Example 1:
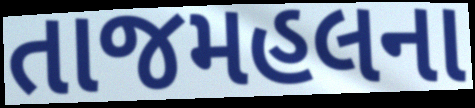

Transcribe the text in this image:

તાજમહલના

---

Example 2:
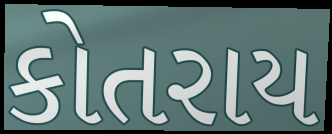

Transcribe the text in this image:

કોતરાય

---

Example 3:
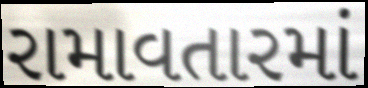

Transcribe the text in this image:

રામાવતારમાં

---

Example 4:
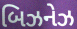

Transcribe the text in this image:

બિઝનેઝ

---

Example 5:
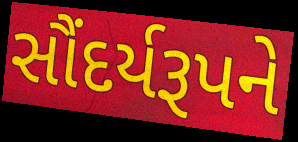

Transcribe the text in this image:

સૌંદર્યરૂપને